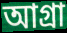
আগ্ৰা